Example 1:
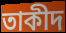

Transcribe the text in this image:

তাকীদ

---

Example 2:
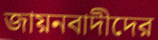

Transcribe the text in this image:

জায়নবাদীদের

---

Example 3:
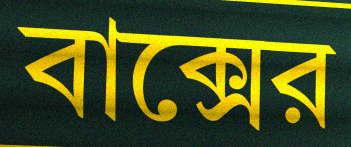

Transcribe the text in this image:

বাক্সের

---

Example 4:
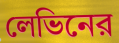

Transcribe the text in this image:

লেভিনের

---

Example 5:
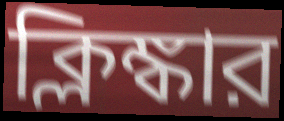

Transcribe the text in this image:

ক্লিঙ্কার